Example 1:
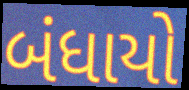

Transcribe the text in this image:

બંધાયો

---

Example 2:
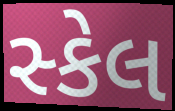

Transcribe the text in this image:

સ્કેલ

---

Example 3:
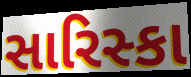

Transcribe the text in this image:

સારિસ્કા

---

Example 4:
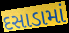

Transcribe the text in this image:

દસાડામાં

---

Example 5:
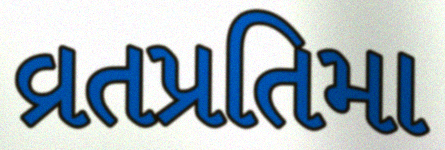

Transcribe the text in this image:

વ્રતપ્રતિમા